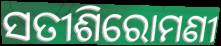
ସତୀଶିରୋମଣୀ